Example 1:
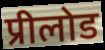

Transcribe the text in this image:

प्रीलोड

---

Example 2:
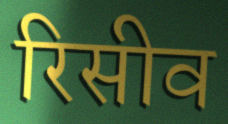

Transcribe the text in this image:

रिसीव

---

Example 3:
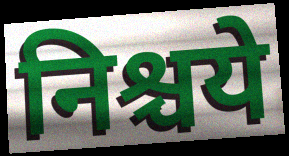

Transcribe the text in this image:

निश्चये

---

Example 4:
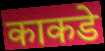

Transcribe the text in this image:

काकडे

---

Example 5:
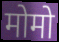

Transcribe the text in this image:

मोमो